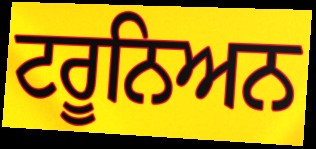
ਟਰੂਨਿਅਨ